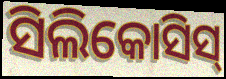
ସିଲିକୋସିସ୍